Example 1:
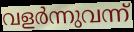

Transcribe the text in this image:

വളർന്നുവന്ന്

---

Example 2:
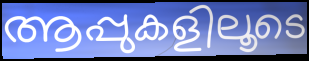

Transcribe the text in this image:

ആപ്പുകളിലൂടെ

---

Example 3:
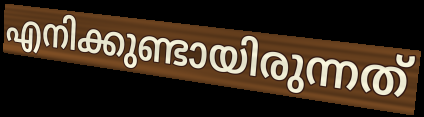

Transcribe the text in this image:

എനിക്കുണ്ടായിരുന്നത്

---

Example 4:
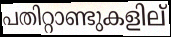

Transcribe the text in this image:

പതിറ്റാണ്ടുകളില്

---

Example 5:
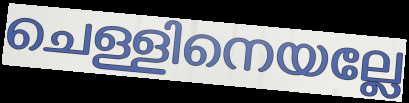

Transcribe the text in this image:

ചെള്ളിനെയല്ലേ